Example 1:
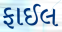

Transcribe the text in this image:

ફાઈલ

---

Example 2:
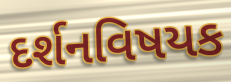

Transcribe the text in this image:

દર્શનવિષયક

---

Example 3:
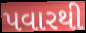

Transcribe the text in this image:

પવારથી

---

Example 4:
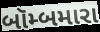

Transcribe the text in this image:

બૉમ્બમારા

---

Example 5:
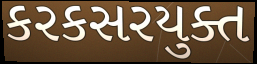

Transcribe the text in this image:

કરકસરયુક્ત